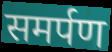
समर्पण